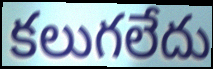
కలుగలేదు